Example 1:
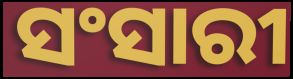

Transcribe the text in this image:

ସଂସାରୀ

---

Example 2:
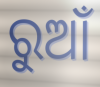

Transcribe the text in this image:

ରୁଆଁ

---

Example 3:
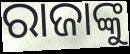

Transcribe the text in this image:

ରାଜାଙ୍କୁ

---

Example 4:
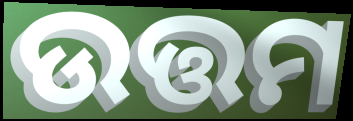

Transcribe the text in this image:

ଉତ୍ତମ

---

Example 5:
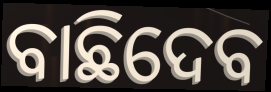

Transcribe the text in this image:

ବାଛିଦେବ